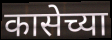
कासेच्या